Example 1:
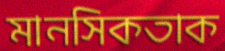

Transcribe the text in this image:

মানসিকতাক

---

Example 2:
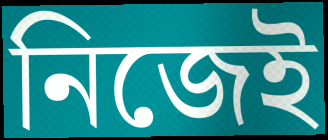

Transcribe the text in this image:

নিজেই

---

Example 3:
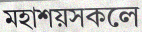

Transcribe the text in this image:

মহাশয়সকলে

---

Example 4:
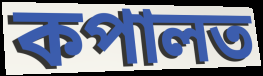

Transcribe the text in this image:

কপালত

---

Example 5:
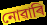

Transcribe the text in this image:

নোৱাৰি